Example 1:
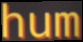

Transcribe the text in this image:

hum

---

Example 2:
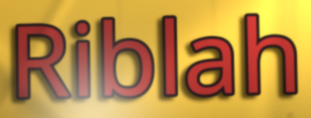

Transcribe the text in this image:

Riblah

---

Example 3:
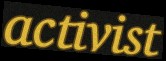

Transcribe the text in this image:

activist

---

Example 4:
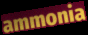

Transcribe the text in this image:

ammonia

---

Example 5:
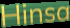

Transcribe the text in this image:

Hinsa